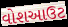
વોશઆઉટ